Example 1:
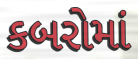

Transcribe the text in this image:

કબરોમાં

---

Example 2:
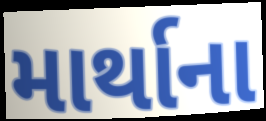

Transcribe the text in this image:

માર્થાના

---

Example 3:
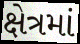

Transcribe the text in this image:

ક્ષેત્રમાં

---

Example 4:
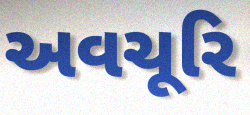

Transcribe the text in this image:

અવચૂરિ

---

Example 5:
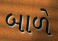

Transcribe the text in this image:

બાળે